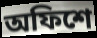
অফিশে